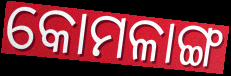
କୋମଳାଙ୍ଗ